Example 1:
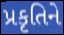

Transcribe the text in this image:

પ્રકૃતિને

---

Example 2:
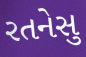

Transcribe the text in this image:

રતનેસુ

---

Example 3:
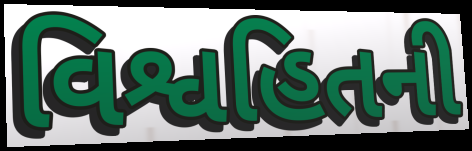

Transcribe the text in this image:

વિશ્વહિતની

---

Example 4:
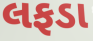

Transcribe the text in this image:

લફડા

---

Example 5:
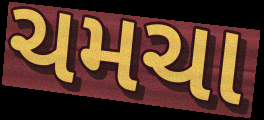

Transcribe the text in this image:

ચમચા